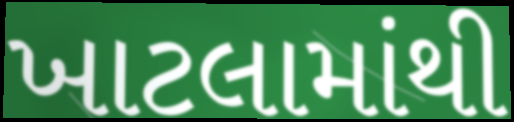
ખાટલામાંથી